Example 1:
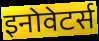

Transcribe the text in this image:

इनोवेटर्स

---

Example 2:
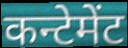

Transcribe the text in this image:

कन्टेमेंट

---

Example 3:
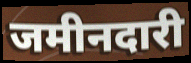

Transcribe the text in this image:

जमीनदारी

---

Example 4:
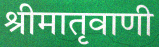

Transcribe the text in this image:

श्रीमातृवाणी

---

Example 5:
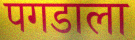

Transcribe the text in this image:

पगडाला